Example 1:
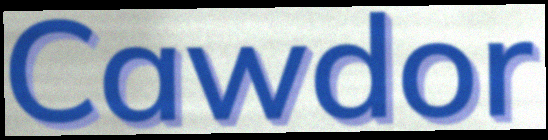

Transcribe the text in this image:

Cawdor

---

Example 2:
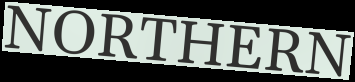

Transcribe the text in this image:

NORTHERN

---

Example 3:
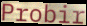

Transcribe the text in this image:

Probir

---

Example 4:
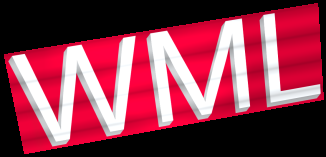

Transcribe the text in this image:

WML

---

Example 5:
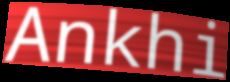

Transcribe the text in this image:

Ankhi